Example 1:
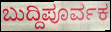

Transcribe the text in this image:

ಬುದ್ದಿಪೂರ್ವಕ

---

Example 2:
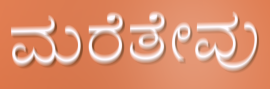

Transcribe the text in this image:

ಮರೆತೇವು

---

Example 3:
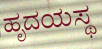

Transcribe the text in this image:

ಹೃದಯಸ್ಥ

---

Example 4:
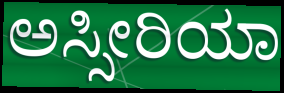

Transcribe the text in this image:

ಅಸ್ಸೀರಿಯಾ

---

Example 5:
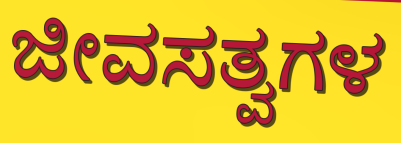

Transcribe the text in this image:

ಜೀವಸತ್ವಗಳ